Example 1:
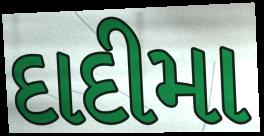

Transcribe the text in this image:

દાદીમા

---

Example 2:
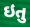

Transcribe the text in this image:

ઇતુ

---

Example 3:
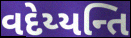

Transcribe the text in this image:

વદેય્યન્તિ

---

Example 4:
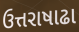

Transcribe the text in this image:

ઉત્તરાષાઢા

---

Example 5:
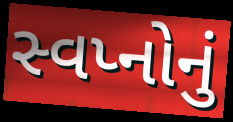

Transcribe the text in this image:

સ્વપ્નોનું